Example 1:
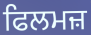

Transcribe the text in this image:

ਫਿਲਮਜ਼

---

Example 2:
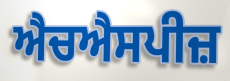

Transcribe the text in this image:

ਐਚਐਸਪੀਜ਼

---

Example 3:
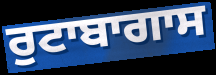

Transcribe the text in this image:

ਰੁਟਾਬਾਗਾਸ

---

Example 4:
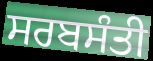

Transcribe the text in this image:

ਸਰਬਸੰਤੀ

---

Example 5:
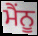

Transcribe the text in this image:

ਮੈਂਨੂ